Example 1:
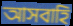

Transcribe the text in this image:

আসবাহি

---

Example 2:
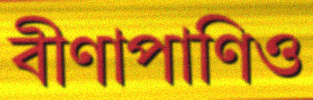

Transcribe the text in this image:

বীণাপাণিও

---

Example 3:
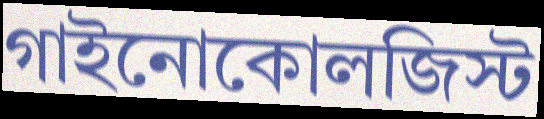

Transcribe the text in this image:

গাইনোকোলজিস্ট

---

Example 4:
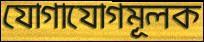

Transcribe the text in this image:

যোগাযোগমূলক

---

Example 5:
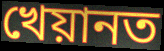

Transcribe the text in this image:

খেয়ানত